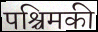
पश्चिमकी